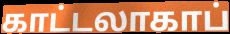
காட்டலாகாப்